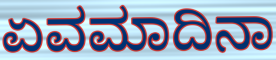
ಏವಮಾದಿನಾ